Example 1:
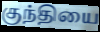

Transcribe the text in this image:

குந்தியை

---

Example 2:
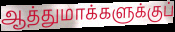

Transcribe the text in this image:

ஆத்துமாக்களுக்குப்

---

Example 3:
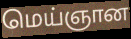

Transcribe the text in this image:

மெய்ஞான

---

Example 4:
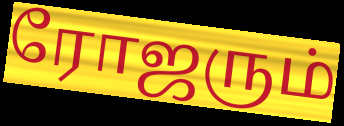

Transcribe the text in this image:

ரோஜரும்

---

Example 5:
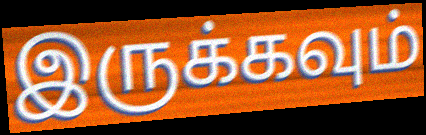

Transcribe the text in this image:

இருக்கவும்